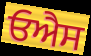
ਓਐਸ